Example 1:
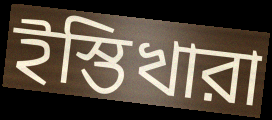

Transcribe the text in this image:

ইস্তিখারা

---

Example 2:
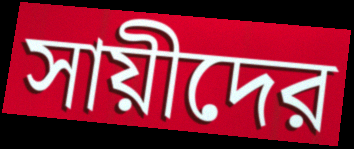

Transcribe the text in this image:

সায়ীদের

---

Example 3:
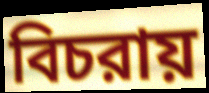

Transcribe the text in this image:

বিচরায়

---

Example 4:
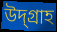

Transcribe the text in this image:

উদ্গ্রাহ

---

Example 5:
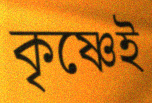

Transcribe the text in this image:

কৃষ্ণেই